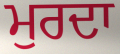
ਮੁਰਦਾ